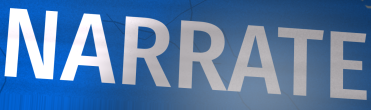
NARRATE